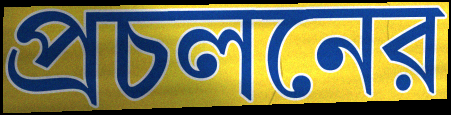
প্রচলনের